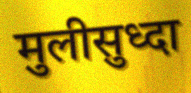
मुलीसुध्दा